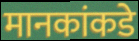
मानकांकडे